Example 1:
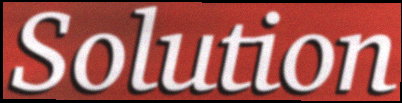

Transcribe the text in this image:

Solution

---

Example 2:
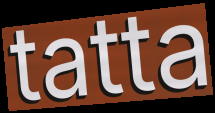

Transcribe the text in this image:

tatta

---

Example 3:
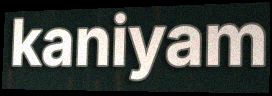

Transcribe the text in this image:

kaniyam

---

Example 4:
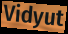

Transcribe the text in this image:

Vidyut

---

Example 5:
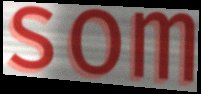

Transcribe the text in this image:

som